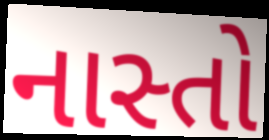
નાસ્તો